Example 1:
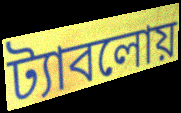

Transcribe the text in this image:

ট্যাবলোয়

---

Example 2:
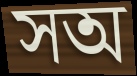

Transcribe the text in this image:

সঅ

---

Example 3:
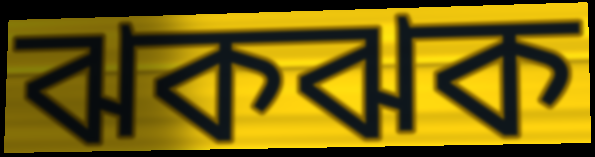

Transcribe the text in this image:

ঝকঝক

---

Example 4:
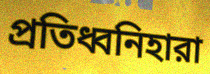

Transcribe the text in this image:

প্রতিধ্বনিহারা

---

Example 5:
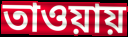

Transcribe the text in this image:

তাওয়ায়